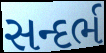
સન્દર્ભ